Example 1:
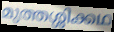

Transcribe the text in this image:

മുത്തശ്ശിക്കഥ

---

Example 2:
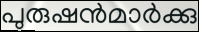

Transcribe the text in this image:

പുരുഷൻമാർക്കു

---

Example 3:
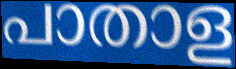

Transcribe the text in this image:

പാതാള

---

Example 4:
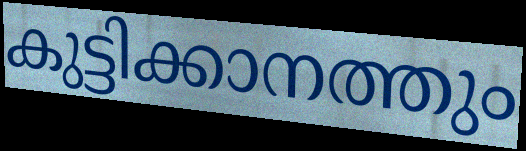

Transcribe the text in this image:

കുട്ടിക്കാനത്തും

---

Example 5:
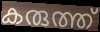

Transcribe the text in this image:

കരുത്ത്